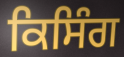
ਕਿਸਿੰਗ